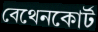
বেথেনকোর্ট